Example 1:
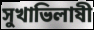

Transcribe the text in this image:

সুখাভিলাষী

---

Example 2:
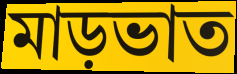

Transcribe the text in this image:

মাড়ভাত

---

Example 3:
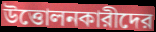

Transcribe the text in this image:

উত্তোলনকারীদের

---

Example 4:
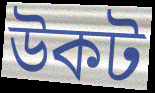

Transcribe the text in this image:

উকট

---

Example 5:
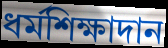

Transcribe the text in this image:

ধর্মশিক্ষাদান